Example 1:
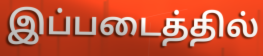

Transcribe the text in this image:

இப்படைத்தில்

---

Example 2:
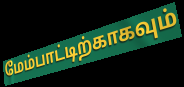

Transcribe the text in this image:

மேம்பாட்டிற்காகவும்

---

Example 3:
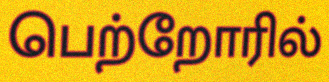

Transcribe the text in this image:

பெற்றோரில்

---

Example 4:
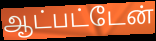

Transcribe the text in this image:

ஆட்பட்டேன்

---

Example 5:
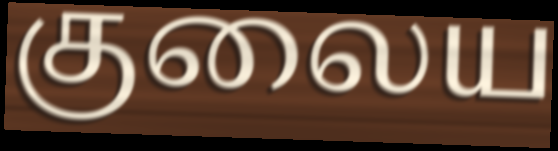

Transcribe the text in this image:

குலைய